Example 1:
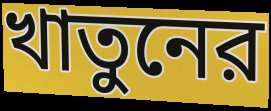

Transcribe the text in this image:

খাতুনের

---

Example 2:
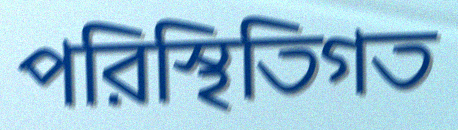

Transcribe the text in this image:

পরিস্থিতিগত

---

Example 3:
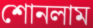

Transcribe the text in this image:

শোনলাম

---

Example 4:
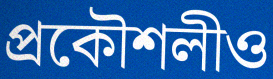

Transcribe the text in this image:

প্রকৌশলীও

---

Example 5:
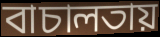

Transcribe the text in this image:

বাচালতায়